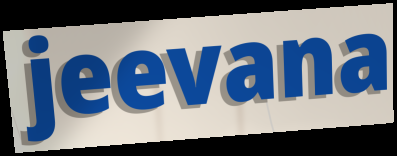
jeevana